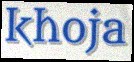
khoja